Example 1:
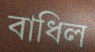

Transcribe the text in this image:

বাধিল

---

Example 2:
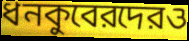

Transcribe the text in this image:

ধনকুবেরদেরও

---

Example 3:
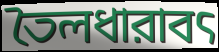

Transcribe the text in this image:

তৈলধারাবৎ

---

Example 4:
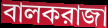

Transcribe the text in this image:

বালকরাজা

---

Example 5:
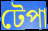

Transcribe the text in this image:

টেপা